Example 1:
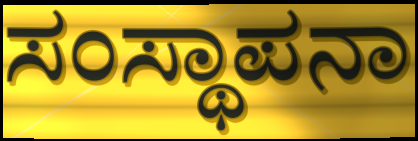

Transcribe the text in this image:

ಸಂಸ್ಥಾಪನಾ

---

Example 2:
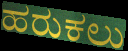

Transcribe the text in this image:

ಹರುಕಲು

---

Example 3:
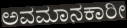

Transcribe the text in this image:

ಅವಮಾನಕಾರೀ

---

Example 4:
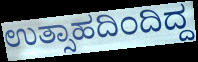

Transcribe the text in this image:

ಉತ್ಸಾಹದಿಂದಿದ್ದ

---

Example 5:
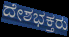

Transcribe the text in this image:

ದೇಶಭಕ್ತರು